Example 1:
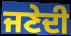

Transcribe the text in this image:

ਜਣੇਦੀ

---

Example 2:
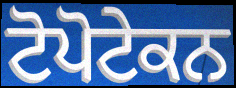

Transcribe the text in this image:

ਟੋਪੋਟੇਕਨ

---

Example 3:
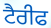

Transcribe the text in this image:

ਟੈਰੀਫ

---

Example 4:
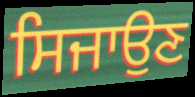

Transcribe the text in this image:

ਸਿਜਾਉਣ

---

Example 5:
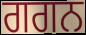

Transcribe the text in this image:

ਗਗਨ